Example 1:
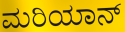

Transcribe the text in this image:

ಮರಿಯಾನ್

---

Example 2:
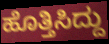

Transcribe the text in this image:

ಹೊತ್ತಿಸಿದ್ದು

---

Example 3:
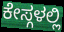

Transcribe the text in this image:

ಕೇಸ್ಗಳಲ್ಲಿ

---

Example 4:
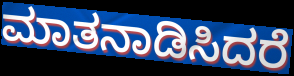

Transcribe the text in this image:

ಮಾತನಾಡಿಸಿದರೆ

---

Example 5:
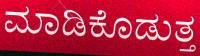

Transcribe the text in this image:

ಮಾಡಿಕೊಡುತ್ತ